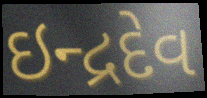
ઇન્દ્રદેવ